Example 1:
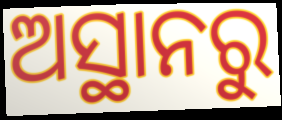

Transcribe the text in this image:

ଅସ୍ଥାନରୁ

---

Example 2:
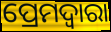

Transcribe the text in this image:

ପ୍ରେମଦ୍ୱାରା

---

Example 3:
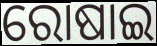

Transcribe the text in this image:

ରୋଷାଇ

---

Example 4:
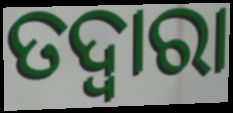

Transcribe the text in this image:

ତଦ୍ୱାରା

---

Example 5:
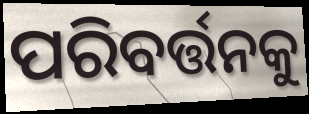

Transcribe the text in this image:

ପରିବର୍ତ୍ତନକୁ